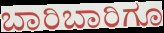
ಬಾರಿಬಾರಿಗೂ